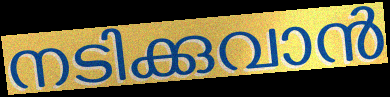
നടിക്കുവാൻ